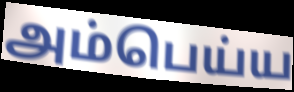
அம்பெய்ய